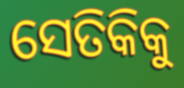
ସେତିକିକୁ